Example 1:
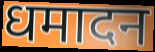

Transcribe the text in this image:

धमादन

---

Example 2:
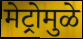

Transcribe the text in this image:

मेट्रोमुळे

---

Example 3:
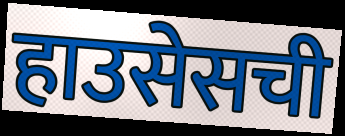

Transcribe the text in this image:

हाउसेसची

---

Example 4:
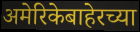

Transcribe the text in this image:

अमेरिकेबाहेरच्या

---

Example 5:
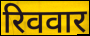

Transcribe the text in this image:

रिववार